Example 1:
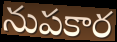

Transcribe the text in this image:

నుపకార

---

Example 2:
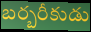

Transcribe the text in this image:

బర్బరీకుడు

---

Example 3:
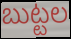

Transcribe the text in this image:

బుట్టల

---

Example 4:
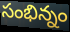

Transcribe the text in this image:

సంభిన్నం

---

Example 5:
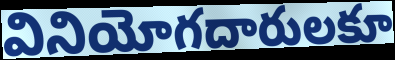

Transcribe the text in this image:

వినియోగదారులకూ